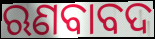
ଋଣବାବଦ